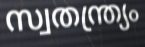
സ്വതന്ത്ര്യം